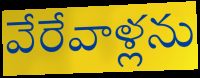
వేరేవాళ్లను